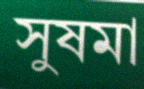
সুষমা